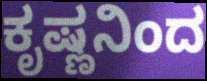
ಕೃಷ್ಣನಿಂದ